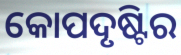
କୋପଦୃଷ୍ଟିର